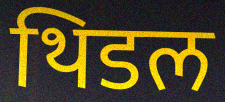
थिडल